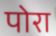
पोरा